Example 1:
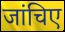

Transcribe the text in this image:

जांचिए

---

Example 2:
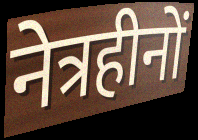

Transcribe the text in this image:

नेत्रहीनों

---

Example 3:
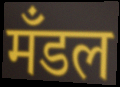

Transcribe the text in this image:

मँडल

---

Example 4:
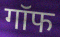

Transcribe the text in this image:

गॉफ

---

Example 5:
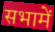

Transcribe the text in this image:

सभामें